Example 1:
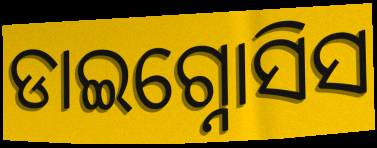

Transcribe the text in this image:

ଡାଇଗ୍ନୋସିସ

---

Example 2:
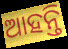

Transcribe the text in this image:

ଆହନ୍ତି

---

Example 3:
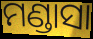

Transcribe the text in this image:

ମଣ୍ଡାସା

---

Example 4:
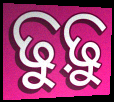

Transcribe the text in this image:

ଢୁଢ଼ୁ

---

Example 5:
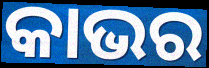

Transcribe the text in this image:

କାଭର